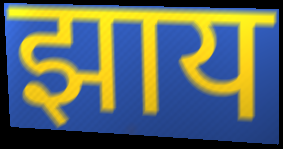
झाय